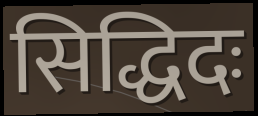
सिद्धिदः